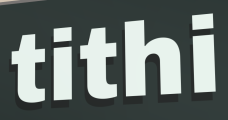
tithi